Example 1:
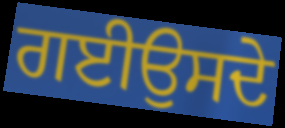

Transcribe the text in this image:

ਗਈਉਸਦੇ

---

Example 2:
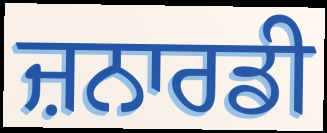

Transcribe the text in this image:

ਜ਼ਨਾਰਡੀ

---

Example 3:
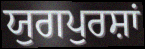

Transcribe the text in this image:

ਯੁਗਪੁਰਸ਼ਾਂ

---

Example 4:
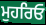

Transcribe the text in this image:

ਮੁਹਰਿਓ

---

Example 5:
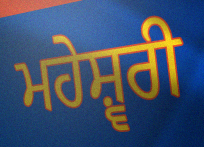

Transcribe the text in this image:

ਮਹੇਸ਼੍ਵਰੀ